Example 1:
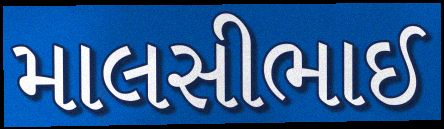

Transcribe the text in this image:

માલસીભાઈ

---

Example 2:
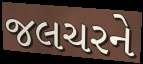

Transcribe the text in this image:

જલચરને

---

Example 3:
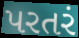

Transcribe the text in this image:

પરતરં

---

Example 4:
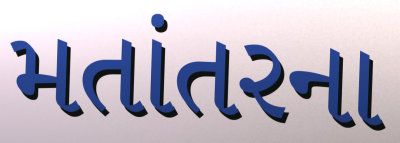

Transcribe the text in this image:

મતાંતરના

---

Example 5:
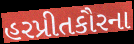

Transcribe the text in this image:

હરપ્રીતકૌરના